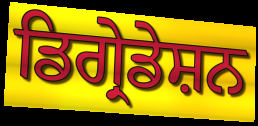
ਡਿਗ੍ਰੇਡੇਸ਼ਨ